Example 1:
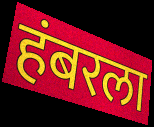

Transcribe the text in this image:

हंबरला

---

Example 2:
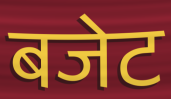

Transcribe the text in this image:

बजेट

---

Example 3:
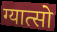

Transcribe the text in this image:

ग्यात्सो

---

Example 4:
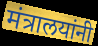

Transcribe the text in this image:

मंत्रालयांनी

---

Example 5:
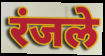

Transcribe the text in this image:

रंजले